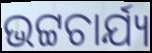
ଭଟ୍ଟଚାର୍ଯ୍ୟ